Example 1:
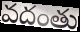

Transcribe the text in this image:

వదంతు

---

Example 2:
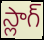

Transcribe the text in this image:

స్లాగ్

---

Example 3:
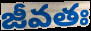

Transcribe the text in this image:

జీవతః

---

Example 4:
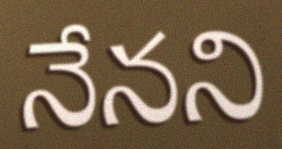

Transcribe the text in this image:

నేనని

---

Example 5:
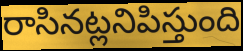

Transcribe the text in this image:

రాసినట్లనిపిస్తుంది